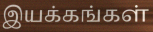
இயக்கங்கள்